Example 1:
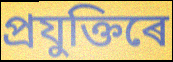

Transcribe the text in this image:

প্ৰযুক্তিৰে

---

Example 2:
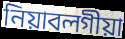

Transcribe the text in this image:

নিয়াবলগীয়া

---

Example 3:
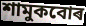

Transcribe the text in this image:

শামুকবোৰ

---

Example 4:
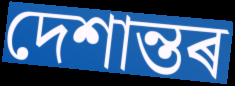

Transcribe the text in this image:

দেশান্তৰ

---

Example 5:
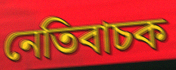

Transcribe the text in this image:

নেতিবাচক